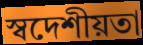
স্বদেশীয়তা